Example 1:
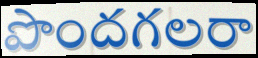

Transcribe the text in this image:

పొందగలరా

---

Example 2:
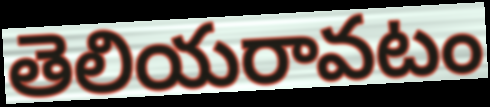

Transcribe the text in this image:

తెలియరావటం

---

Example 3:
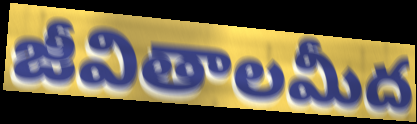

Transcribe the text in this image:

జీవితాలమీద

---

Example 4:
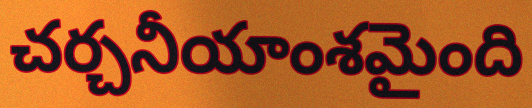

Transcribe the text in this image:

చర్చనీయాంశమైంది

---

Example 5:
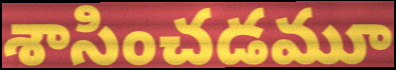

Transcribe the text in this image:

శాసించడమూ